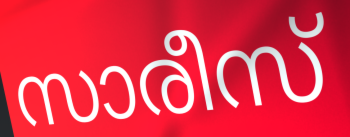
സാരീസ്